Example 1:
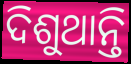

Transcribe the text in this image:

ଦିଶୁଥାନ୍ତି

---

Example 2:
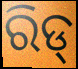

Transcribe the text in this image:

ରିଡ୍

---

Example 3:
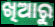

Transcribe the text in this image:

ଖିଆରୁ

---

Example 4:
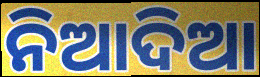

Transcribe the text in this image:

ନିଆଦିଆ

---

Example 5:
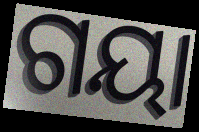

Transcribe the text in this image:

ଗୟା